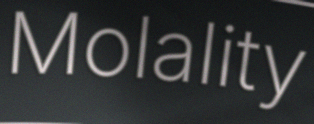
Molality